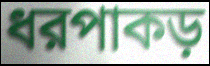
ধরপাকড়